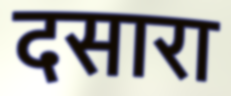
दसारा